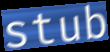
stub